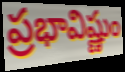
ప్రభావిష్ణుం